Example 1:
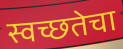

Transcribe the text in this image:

स्वच्छतेचा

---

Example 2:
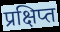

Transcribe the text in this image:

प्रक्षिप्त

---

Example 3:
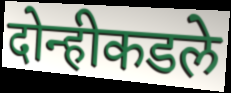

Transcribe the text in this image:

दोन्हीकडले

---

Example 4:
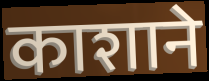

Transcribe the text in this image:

काशाने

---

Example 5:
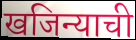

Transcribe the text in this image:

खजिन्याची